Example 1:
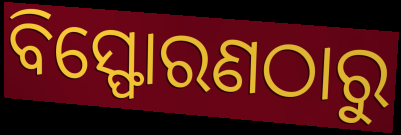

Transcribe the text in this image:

ବିସ୍ଫୋରଣଠାରୁ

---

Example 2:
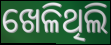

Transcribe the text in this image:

ଖେଳିଥିଲି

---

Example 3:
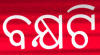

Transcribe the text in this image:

ବକ୍ଷଟି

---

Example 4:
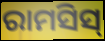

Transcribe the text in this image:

ରାମସିସ୍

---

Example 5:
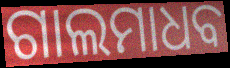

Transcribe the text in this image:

ଗାଲମାଧବ